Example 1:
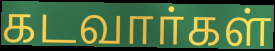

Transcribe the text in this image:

கடவார்கள்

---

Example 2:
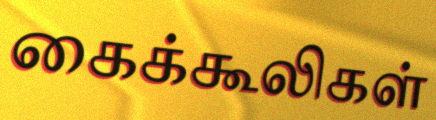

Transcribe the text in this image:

கைக்கூலிகள்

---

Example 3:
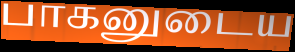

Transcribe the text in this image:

பாகனுடைய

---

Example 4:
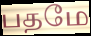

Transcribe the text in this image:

பதமே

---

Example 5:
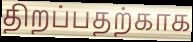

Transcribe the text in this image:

திறப்பதற்காக